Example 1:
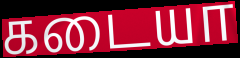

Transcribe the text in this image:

கடையா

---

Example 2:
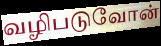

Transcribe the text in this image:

வழிபடுவோன்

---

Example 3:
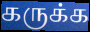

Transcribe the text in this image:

கருக்க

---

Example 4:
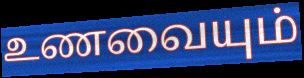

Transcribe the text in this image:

உணவையும்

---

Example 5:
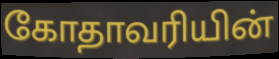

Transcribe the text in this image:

கோதாவரியின்